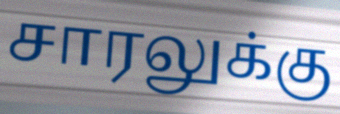
சாரலுக்கு